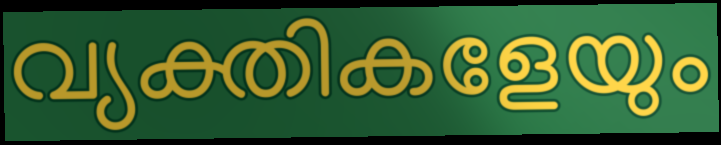
വ്യക്തികളേയും